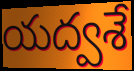
యద్వశే